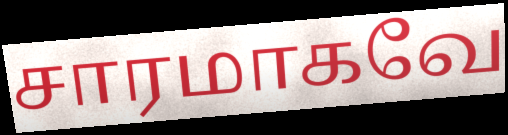
சாரமாகவே